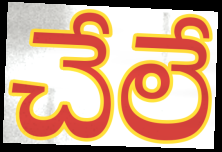
చేలే